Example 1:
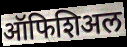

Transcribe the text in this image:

ऑफिशिअल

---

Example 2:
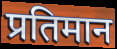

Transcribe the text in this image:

प्रतिमान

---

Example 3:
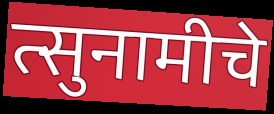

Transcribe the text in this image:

त्सुनामीचे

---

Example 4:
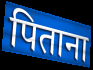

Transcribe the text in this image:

पिताना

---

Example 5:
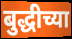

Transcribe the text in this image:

बुद्धीच्या